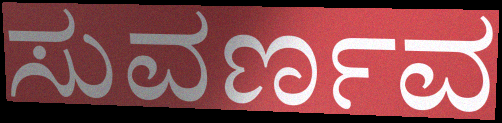
ಸುವರ್ಣವ